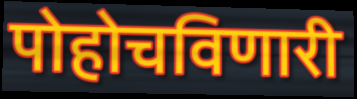
पोहोचविणारी